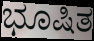
ಭೂಷಿತ